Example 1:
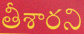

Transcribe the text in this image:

తీశారని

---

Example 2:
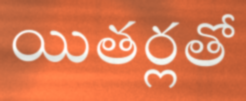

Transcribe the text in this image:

యితర్లతో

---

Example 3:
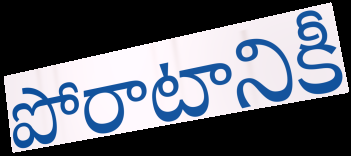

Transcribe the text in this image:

పోరాటానికీ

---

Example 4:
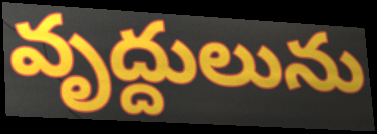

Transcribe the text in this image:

వృద్దులును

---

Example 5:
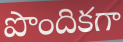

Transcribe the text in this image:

పొందికగా